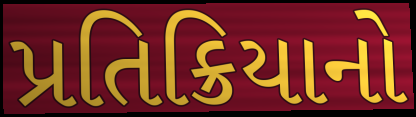
પ્રતિક્રિયાનો